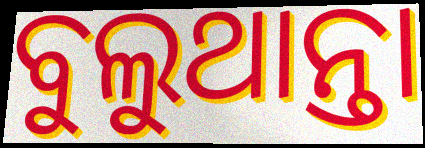
ବୁଲୁଥାନ୍ତା